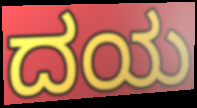
ದಯ